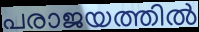
പരാജയത്തിൽ